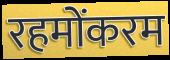
रहमोंकरम